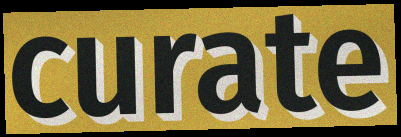
curate